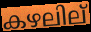
കഴലില്